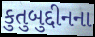
કુતુબુદ્દીનના